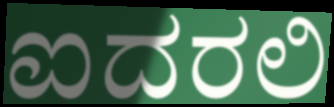
ಐದರಲಿ